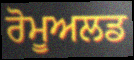
ਰੋਮੂਅਲਡ